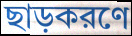
ছাড়করণে